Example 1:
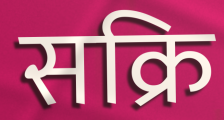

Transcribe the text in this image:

सक्रि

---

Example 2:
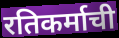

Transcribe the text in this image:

रतिकर्माची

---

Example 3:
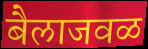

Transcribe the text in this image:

बैलाजवळ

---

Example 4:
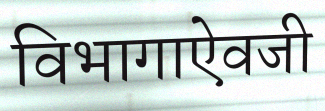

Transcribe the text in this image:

विभागाऐवजी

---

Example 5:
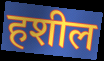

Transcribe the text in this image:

हशील